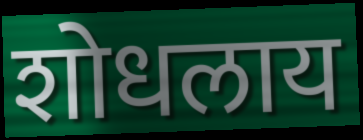
शोधलाय